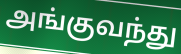
அங்குவந்து